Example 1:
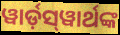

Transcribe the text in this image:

ୱାର୍ଡ଼ସ୍‌ୱାର୍ଥଙ୍କ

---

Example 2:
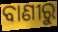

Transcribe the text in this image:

ବାଣୀରୁ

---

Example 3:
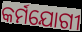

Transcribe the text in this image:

କର୍ମଯୋଗୀ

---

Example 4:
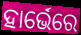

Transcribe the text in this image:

ହାର୍ଭେରେ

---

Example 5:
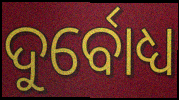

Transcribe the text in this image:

ଦୁର୍ବୋଧ୍ୟ